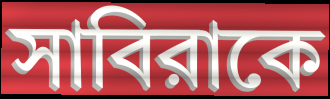
সাবিরাকে